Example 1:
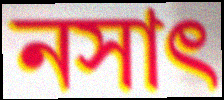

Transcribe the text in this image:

নসাৎ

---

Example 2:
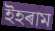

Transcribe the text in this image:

ইহৰাম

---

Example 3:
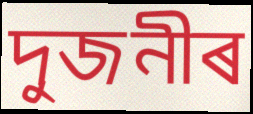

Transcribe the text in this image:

দুজনীৰ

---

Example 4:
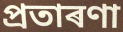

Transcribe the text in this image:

প্ৰতাৰণা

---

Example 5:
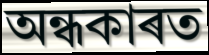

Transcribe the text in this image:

অন্ধকাৰত